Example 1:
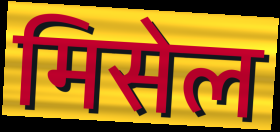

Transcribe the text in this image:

मिसेल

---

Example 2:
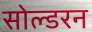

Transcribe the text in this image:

सोल्डरन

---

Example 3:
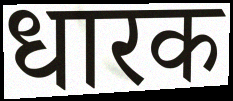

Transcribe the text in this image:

धारक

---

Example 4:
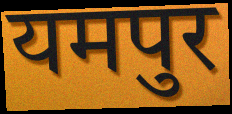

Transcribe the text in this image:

यमपुर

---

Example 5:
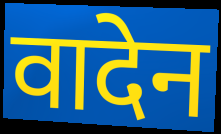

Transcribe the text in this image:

वादेन